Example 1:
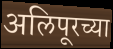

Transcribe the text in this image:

अलिपूरच्या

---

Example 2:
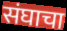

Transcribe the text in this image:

संघाचा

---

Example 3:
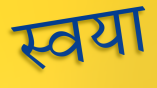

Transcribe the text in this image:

स्वया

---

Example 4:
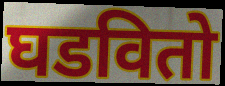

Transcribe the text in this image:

घडवितो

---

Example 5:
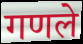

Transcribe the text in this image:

गणले